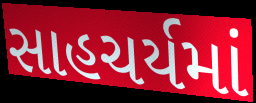
સાહચર્યમાં